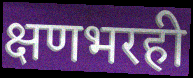
क्षणभरही